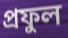
প্রফুল